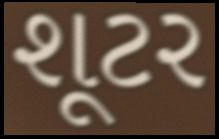
શૂટર